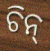
ଚିନ୍